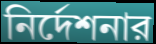
নির্দেশনার